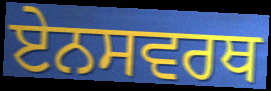
ਏਨਸਵਰਥ